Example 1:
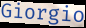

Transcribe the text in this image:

Giorgio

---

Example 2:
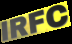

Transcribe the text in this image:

IRFC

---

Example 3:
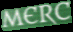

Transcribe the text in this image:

MERC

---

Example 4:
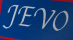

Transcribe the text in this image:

JEVO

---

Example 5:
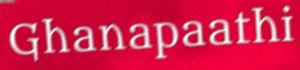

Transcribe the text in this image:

Ghanapaathi